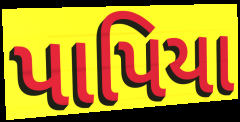
પાપિયા